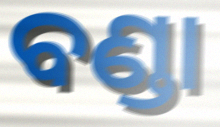
ବଣ୍ଡା